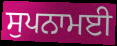
ਸੁਪਨਾਮਈ